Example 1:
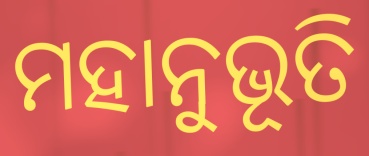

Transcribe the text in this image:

ମହାନୁଭୂତି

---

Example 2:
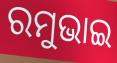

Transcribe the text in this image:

ରମୁଭାଇ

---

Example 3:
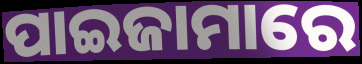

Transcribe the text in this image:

ପାଇଜାମାରେ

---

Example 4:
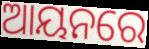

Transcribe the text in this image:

ଆୟନରେ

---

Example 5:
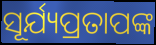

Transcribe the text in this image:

ସୂର୍ଯ୍ୟପ୍ରତାପଙ୍କ